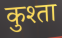
कुश्ता